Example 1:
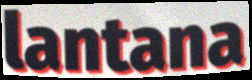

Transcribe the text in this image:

lantana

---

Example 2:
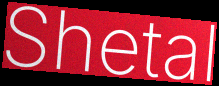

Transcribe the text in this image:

Shetal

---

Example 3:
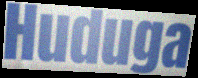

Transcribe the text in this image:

Huduga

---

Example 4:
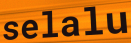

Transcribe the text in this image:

selalu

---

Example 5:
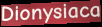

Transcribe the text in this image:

Dionysiaca